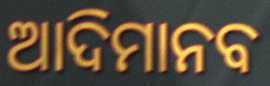
ଆଦିମାନବ